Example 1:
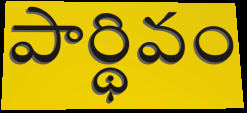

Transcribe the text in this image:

పార్థివం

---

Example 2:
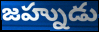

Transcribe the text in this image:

జహ్నుడు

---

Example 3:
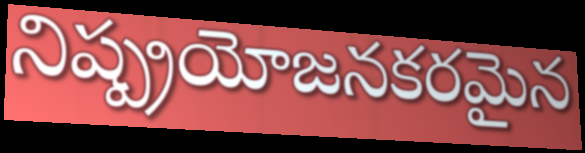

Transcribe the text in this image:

నిష్ప్రయోజనకరమైన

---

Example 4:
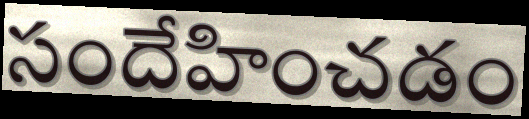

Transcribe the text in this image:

సందేహించడం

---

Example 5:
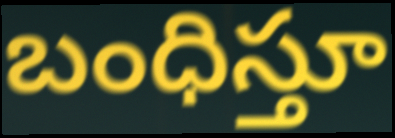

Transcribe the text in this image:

బంధిస్తూ